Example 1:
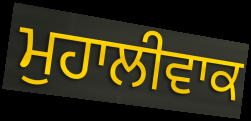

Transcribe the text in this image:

ਮੁਹਾਲੀਵਾਕ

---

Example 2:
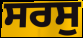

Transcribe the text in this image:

ਸਰਸੁ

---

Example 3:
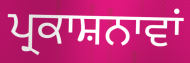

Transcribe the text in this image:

ਪ੍ਰਕਾਸ਼ਨਾਵਾਂ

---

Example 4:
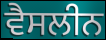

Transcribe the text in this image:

ਵੈਸਲੀਨ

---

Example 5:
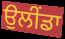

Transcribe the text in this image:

ਉਲੀਂਡਾ